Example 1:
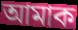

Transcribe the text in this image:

আমাক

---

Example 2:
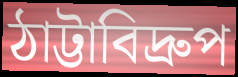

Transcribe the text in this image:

ঠাট্টাবিদ্রুপ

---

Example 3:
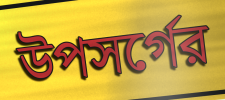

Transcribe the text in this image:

উপসর্গের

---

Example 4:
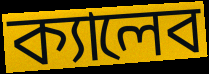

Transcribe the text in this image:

ক্যালেব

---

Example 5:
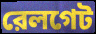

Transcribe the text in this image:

রেলগেট